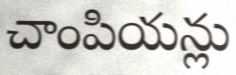
చాంపియన్లు